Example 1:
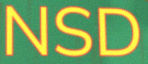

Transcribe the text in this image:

NSD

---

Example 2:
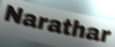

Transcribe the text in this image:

Narathar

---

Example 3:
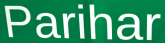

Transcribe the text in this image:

Parihar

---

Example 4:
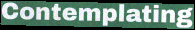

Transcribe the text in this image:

Contemplating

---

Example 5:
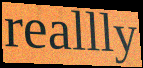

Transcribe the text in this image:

reallly